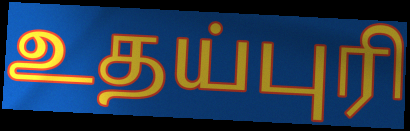
உதய்புரி